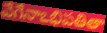
వేగేనాఽభిపతితా